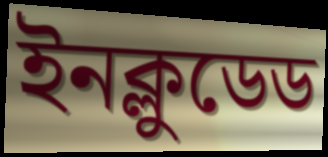
ইনক্লুডেড